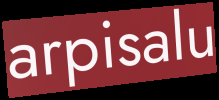
arpisalu